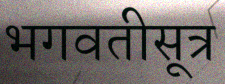
भगवतीसूत्र